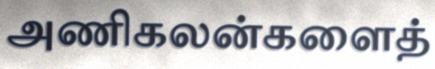
அணிகலன்களைத்